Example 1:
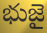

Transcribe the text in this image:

భుజై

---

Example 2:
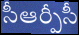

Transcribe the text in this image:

సీఆర్పీసీ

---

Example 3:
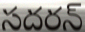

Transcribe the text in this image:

సదరన్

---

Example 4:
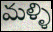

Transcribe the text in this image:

మళ్ళి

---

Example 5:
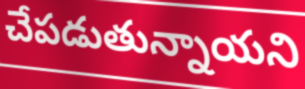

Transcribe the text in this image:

చేపడుతున్నాయని